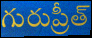
గురుప్రీత్